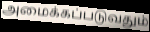
அமைக்கப்படுவதும்